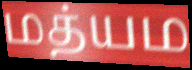
மத்யம